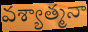
వశ్యాత్మనా